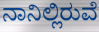
ನಾನಿಲ್ಲಿರುವೆ